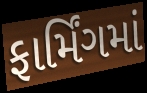
ફાર્મિંગમાં